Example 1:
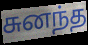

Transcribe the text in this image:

சுனந்த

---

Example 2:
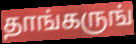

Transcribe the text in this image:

தாங்கருங்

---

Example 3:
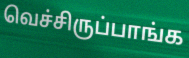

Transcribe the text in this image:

வெச்சிருப்பாங்க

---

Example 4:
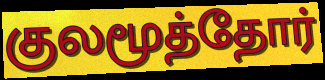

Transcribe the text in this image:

குலமூத்தோர்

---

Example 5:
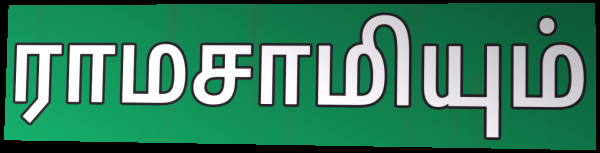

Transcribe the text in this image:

ராமசாமியும்